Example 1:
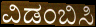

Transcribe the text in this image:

ವಿಡಂಬಿಸಿ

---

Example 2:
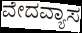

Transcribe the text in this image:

ವೇದವ್ಯಾಸ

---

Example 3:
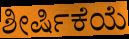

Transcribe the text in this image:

ಶೀರ್ಷಿಕೆಯೆ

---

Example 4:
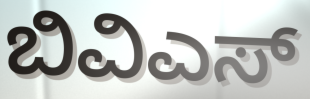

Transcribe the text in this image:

ಬಿವಿಎಸ್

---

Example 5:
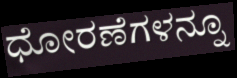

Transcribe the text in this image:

ಧೋರಣೆಗಳನ್ನೂ